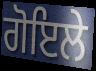
ਗੋਇਲੇ